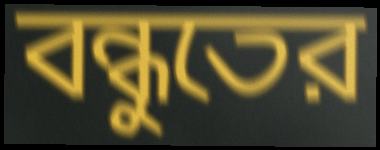
বন্ধুতের